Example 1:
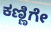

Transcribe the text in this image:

ಕಣ್ಣಿಗೇ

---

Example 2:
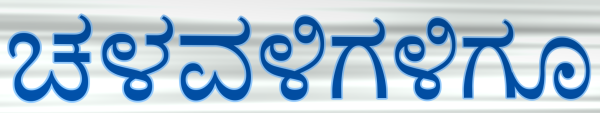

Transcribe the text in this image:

ಚಳವಳಿಗಳಿಗೂ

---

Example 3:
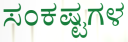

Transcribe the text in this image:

ಸಂಕಷ್ಟಗಳ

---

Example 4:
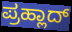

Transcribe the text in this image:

ಪ್ರಹ್ಲಾದ್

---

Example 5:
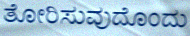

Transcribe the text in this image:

ತೋರಿಸುವುದೊಂದು